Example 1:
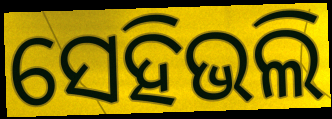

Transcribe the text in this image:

ସେହିଭଲି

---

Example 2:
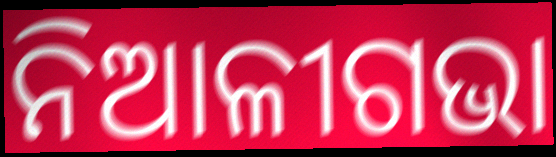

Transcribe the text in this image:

ନିଆଳୀଗଭା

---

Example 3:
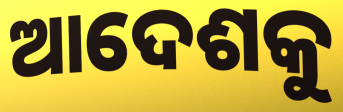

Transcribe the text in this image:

ଆଦେଶକୁ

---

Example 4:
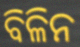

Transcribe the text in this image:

ବିଳିନ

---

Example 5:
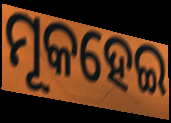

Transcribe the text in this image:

ମୂକହେଇ